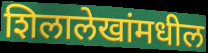
शिलालेखांमधील